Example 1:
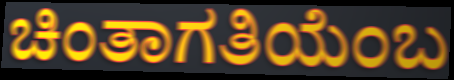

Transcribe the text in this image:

ಚಿಂತಾಗತಿಯೆಂಬ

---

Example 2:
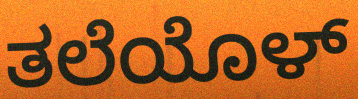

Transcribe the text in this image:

ತಲೆಯೊಳ್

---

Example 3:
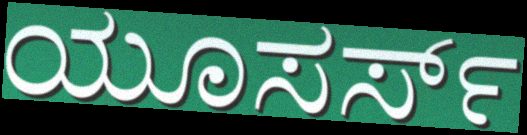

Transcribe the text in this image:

ಯೂಸರ್ಸ್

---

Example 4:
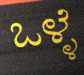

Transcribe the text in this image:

ಒಳ್ಳೆ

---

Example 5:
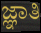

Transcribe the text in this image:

ಜ್ಞಾತಿ